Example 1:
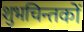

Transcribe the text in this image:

शुभचिन्तकों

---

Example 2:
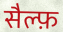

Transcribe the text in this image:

सैल्फ़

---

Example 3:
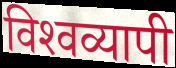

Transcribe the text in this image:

विश्‍वव्यापी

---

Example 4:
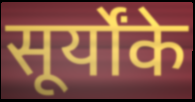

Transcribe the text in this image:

सूर्योंके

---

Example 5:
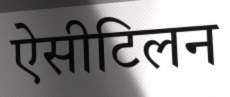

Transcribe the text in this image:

ऐसीटिलन